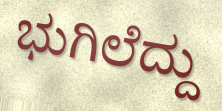
ಭುಗಿಲೆದ್ದು